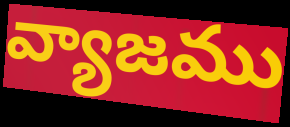
వ్యాజము